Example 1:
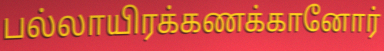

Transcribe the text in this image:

பல்லாயிரக்கணக்கானோர்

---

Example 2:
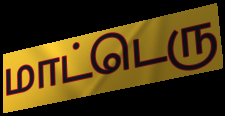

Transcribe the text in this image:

மாட்டெரு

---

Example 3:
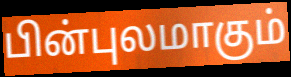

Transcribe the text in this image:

பின்புலமாகும்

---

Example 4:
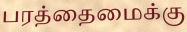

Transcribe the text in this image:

பரத்தைமைக்கு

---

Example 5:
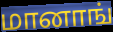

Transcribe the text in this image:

மானாங்